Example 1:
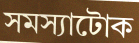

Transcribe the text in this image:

সমস্যাটোক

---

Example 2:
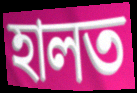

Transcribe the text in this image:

হালত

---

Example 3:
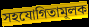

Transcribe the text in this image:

সহযোগিতামূলক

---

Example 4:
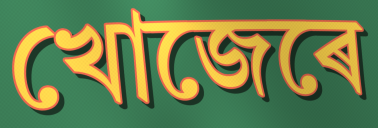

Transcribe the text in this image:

খোজেৰে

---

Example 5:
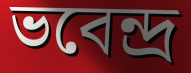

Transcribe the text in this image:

ভবেন্দ্ৰ